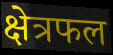
क्षेत्रफल